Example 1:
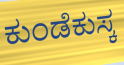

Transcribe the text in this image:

ಕುಂಡೆಕುಸ್ಕ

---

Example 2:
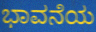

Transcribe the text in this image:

ಭಾವನೆಯ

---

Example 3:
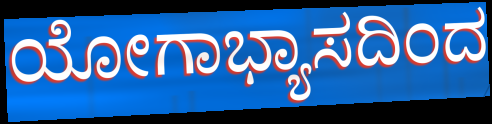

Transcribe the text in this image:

ಯೋಗಾಭ್ಯಾಸದಿಂದ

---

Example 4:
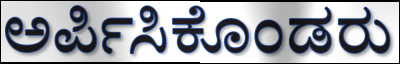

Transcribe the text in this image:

ಅರ್ಪಿಸಿಕೊಂಡರು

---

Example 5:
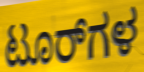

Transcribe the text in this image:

ಟೂರ್‌ಗಳ